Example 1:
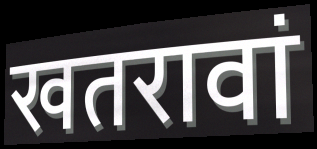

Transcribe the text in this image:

खतरावां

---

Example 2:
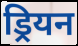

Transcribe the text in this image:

ड्रियन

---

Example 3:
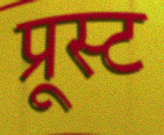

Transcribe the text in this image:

प्रूस्ट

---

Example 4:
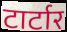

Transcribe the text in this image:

टार्टार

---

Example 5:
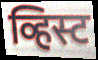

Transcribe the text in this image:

व्हिस्ट